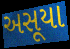
અસૂયા